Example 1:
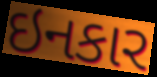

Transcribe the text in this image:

ઇનકાર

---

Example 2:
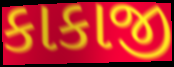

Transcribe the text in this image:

કાકાજી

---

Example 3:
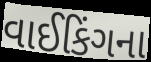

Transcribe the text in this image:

વાઈકિંગના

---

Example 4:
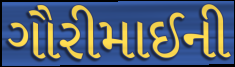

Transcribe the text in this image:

ગૌરીમાઈની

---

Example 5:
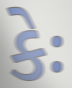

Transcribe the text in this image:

કેઃ